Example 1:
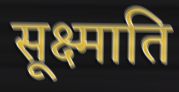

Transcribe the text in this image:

सूक्ष्माति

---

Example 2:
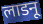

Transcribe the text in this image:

लाडनू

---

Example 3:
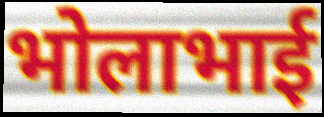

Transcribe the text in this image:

भोलाभाई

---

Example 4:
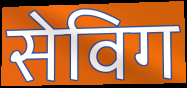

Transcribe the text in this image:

सेविग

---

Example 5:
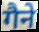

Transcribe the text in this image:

गैने